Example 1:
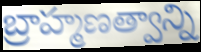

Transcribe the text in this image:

బ్రాహ్మణత్వాన్ని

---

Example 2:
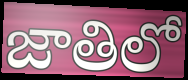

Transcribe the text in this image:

జాతిలో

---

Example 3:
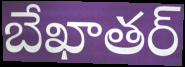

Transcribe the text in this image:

బేఖాతర్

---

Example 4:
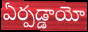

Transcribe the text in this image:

ఏర్పడ్డాయో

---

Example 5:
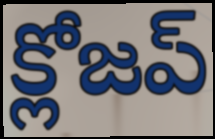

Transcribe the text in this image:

క్లోజప్